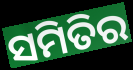
ସମିତିର